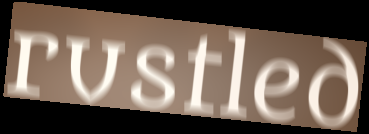
rustled